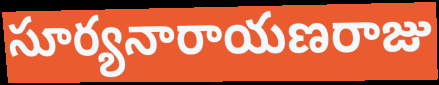
సూర్యనారాయణరాజు